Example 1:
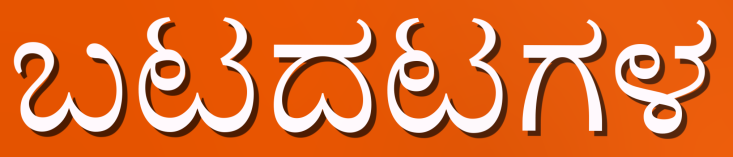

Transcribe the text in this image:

ಬಟದಟಗಳ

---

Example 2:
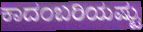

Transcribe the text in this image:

ಕಾದಂಬರಿಯಷ್ಟು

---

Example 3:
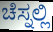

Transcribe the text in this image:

ಚೆಸ್ನಲ್ಲಿ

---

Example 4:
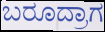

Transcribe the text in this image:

ಬರೂದ್ರಾಗ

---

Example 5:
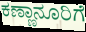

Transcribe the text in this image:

ಕಣ್ಣಾನೂರಿಗೆ